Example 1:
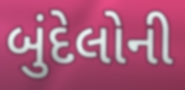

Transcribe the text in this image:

બુંદેલોની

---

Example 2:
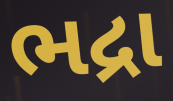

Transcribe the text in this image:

ભદ્રા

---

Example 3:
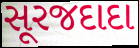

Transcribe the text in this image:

સૂરજદાદા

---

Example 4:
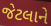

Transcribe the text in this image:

જેટલાને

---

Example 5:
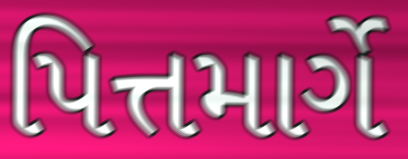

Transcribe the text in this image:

પિત્તમાર્ગે